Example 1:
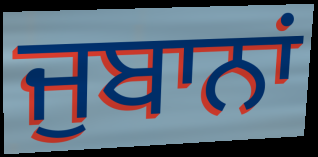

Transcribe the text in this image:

ਜੁਬਾਨਾਂ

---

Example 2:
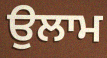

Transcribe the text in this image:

ਉਲਾਮ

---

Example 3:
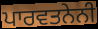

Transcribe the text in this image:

ਪਾਰਵਤਨੇਨੀ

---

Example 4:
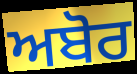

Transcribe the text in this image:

ਅਬੋਰ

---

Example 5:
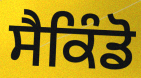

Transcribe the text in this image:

ਸੈਕਿੰਡੋ